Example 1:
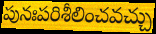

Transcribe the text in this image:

పునఃపరిశీలించవచ్చు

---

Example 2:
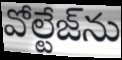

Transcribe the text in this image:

వోల్టేజ్‌ను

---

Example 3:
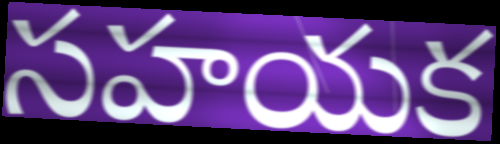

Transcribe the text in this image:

సహయక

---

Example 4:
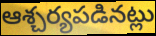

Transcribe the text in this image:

ఆశ్చర్యపడినట్లు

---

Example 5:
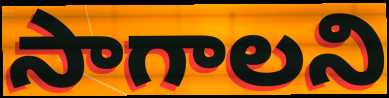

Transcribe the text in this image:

సాగాలని